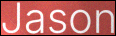
Jason